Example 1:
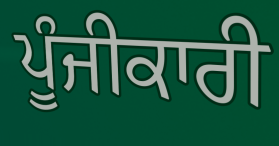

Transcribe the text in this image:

ਪੂੰਜੀਕਾਰੀ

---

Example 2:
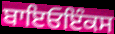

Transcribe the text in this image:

ਬਾਇਓਇੰਕਸ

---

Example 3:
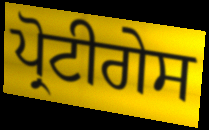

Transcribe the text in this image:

ਪ੍ਰੋਟੀਗੇਸ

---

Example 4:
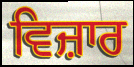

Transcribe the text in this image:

ਵਿਜ਼ਾਰ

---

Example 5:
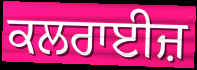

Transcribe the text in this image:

ਕਲਰਾਈਜ਼